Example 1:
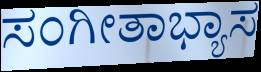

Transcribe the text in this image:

ಸಂಗೀತಾಭ್ಯಾಸ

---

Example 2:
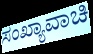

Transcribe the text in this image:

ಸಂಖ್ಯಾವಾಚಿ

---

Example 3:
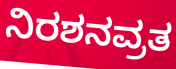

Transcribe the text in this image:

ನಿರಶನವ್ರತ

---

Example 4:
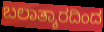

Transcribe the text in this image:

ಬಲಾತ್ಕಾರದಿಂದ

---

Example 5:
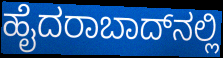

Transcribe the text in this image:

ಹೈದರಾಬಾದ್‌ನಲ್ಲಿ